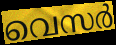
വെസർ